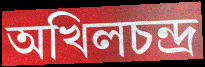
অখিলচন্দ্র